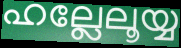
ഹല്ലേലൂയ്യ